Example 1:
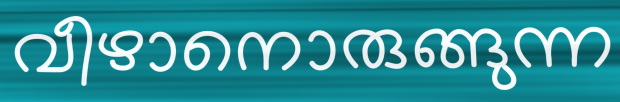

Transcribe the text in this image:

വീഴാനൊരുങ്ങുന്ന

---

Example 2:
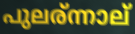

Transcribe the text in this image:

പുലര്ന്നാല്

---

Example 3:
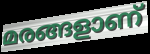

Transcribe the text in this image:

മരങ്ങളാണ്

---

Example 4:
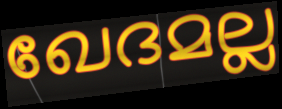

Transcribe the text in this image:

ഖേദമല്ല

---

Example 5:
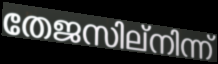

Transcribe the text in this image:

തേജസില്നിന്ന്